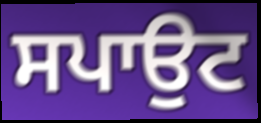
ਸਪਾਉਟ